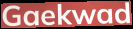
Gaekwad